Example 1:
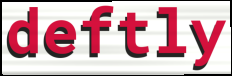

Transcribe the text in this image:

deftly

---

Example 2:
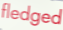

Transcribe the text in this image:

fledged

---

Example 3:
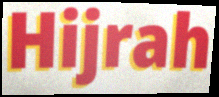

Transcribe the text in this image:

Hijrah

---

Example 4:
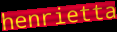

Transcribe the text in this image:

henrietta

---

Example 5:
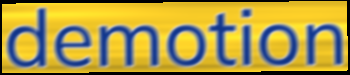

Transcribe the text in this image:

demotion